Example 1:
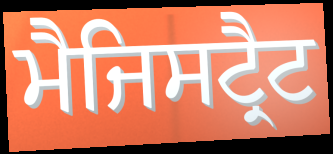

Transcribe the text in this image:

ਮੈਜਿਸਟ੍ਰੈਟ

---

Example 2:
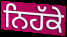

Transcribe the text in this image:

ਨਿਹੱਕੇ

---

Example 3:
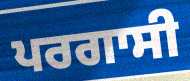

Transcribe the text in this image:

ਪਰਗਾਸੀ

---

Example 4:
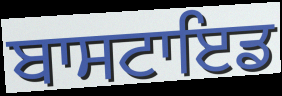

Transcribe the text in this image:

ਬਾਸਟਾਇਡ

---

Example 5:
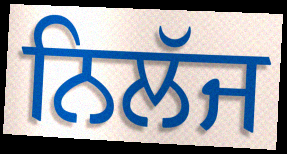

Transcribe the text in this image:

ਨਿਲੱਜ